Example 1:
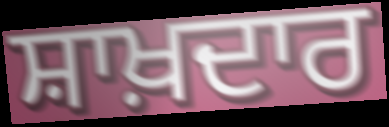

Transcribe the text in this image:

ਸ਼ਾਖ਼ਦਾਰ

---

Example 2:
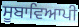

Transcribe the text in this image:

ਸੂਬਾਵਿਆਪੀ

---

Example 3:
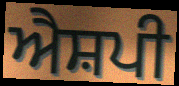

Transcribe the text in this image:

ਐਸ਼ਪੀ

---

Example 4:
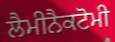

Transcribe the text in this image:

ਲੈਮੀਨੈਕਟੋਮੀ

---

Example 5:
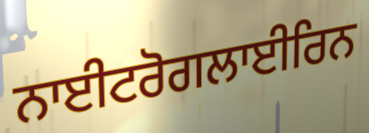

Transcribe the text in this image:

ਨਾਈਟਰੋਗਲਾਈਰਿਨ